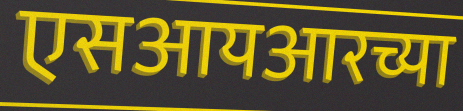
एसआयआरच्या